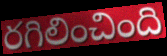
రగిలించింది